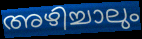
അഴിച്ചാലും